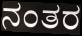
ನಂತರ